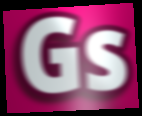
Gs